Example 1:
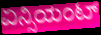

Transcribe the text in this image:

ಏನ್ಸಿಯಂಟ್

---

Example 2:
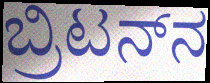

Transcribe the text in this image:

ಬ್ರಿಟನ್‌ನ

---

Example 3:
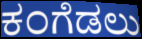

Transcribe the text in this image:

ಕಂಗೆಡಲು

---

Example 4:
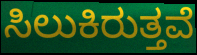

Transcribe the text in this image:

ಸಿಲುಕಿರುತ್ತವೆ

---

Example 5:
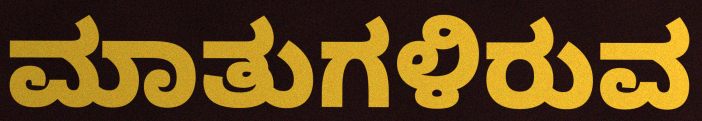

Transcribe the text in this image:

ಮಾತುಗಳಿರುವ